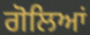
ਗੋਲਿਆਂ